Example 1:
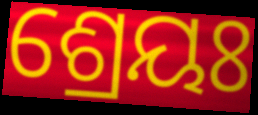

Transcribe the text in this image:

ଶ୍ରେୟଃ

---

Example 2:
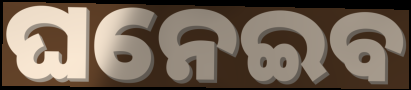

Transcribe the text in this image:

ଘନେଇବ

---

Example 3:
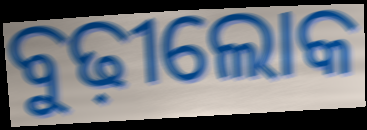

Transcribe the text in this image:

ବୁଢ଼ୀଲୋକ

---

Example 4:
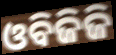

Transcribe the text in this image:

ଓବିଜିଜି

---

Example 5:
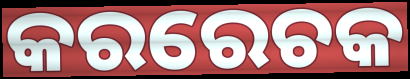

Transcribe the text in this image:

କରରେଚକ